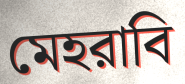
মেহরাবি